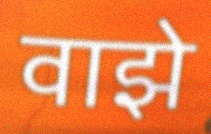
वाझे